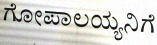
ಗೋಪಾಲಯ್ಯನಿಗೆ